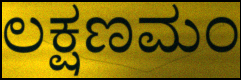
ಲಕ್ಷಣಮಂ